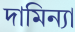
দামিন্যা